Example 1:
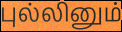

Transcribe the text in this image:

புல்லினும்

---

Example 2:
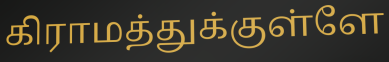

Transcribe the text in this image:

கிராமத்துக்குள்ளே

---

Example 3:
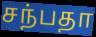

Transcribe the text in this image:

சந்பதா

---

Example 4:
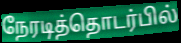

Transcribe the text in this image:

நேரடித்தொடர்பில்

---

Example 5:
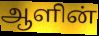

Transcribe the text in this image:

ஆளின்